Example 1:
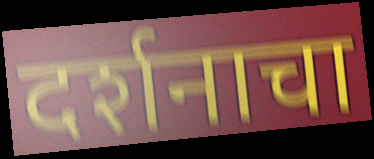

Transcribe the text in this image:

दर्शनाचा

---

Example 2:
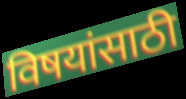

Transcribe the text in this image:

विषयांसाठी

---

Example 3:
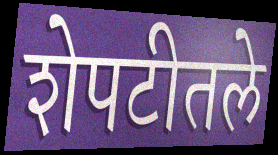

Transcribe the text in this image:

शेपटीतले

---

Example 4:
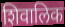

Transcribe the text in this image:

शिवालिक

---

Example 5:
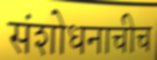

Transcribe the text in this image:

संशोधनाचीच